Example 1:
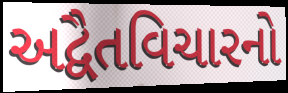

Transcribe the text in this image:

અદ્વૈતવિચારનો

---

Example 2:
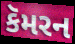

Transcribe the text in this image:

કૅમરન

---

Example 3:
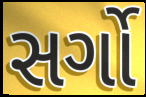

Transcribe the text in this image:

સર્ગો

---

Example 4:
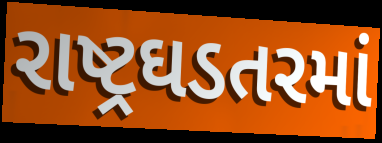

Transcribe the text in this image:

રાષ્ટ્રઘડતરમાં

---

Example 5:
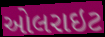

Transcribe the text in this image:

ઓલરાઇટ